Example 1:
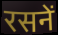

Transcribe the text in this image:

रसनें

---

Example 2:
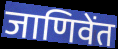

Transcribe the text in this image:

जाणिवेंत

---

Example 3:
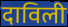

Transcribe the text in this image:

दाविली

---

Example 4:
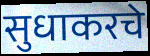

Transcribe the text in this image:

सुधाकरचे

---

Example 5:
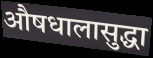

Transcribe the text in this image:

औषधालासुद्धा